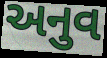
અનુવ